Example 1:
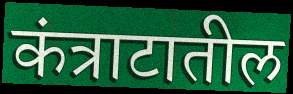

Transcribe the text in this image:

कंत्राटातील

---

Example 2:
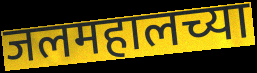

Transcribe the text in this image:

जलमहालच्या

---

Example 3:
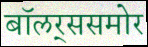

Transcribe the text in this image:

बॉलर्ससमोर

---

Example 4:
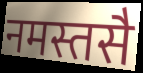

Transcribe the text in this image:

नमस्तसै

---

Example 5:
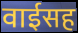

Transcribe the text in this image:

वाईसह